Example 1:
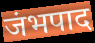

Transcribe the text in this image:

जंभपाद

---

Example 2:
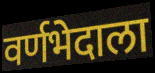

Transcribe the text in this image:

वर्णभेदाला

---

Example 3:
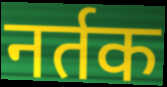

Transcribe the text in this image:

नर्तक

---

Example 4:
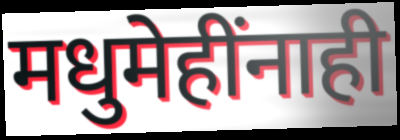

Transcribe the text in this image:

मधुमेहींनाही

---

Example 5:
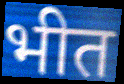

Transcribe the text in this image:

भीत